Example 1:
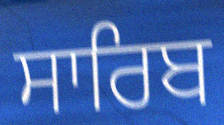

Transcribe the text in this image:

ਸਾਰਿਬ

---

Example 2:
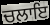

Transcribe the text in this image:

ਚਲਾਇ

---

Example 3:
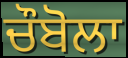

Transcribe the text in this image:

ਚੌਬੋਲਾ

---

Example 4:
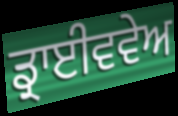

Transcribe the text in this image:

ਡ੍ਰਾਈਵਵੇਅ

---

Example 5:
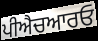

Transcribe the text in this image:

ਪੀਐਚਆਰਓ